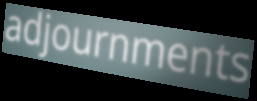
adjournments